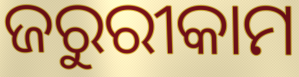
ଜରୁରୀକାମ